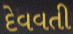
દેવવતી